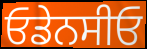
ਓਡੇਨਸੀਓ